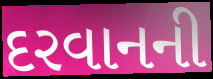
દરવાનની